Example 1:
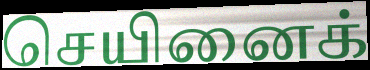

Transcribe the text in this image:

செயினைக்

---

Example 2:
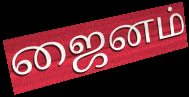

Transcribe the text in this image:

ஜைனம்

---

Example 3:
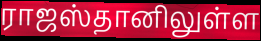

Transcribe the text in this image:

ராஜஸ்தானிலுள்ள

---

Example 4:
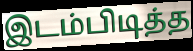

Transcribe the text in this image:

இடம்பிடித்த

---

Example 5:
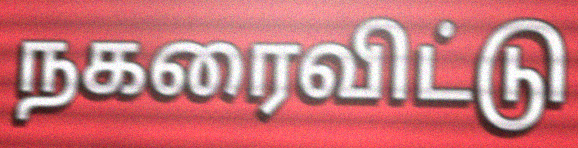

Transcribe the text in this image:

நகரைவிட்டு